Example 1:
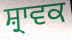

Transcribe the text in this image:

ਸ਼੍ਰਾਵਕ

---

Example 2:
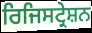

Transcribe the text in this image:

ਰਿਜਿਸਟ੍ਰੇਸ਼ਨ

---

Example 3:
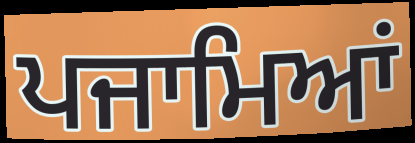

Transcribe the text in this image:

ਪਜਾਮਿਆਂ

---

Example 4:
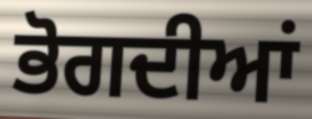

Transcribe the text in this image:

ਭੋਗਦੀਆਂ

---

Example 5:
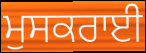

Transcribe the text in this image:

ਮੁਸਕਰਾਈ